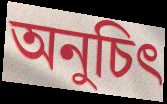
অনুচিৎ